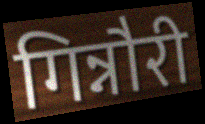
गिन्नौरी